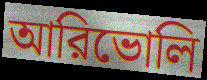
আরিভোলি